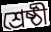
শ্রেষ্ঠী